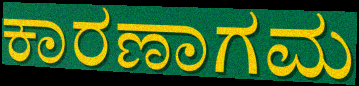
ಕಾರಣಾಗಮ